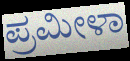
ಪ್ರಮೀಳಾ